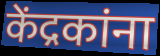
केंद्रकांना